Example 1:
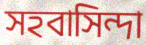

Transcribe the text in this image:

সহবাসিন্দা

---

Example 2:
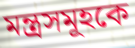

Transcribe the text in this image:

মন্ত্রসমূহকে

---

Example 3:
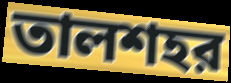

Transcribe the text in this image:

তালশহর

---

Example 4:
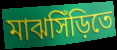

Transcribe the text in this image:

মাঝসিঁড়িতে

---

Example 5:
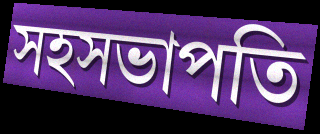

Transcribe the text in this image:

সহসভাপতি